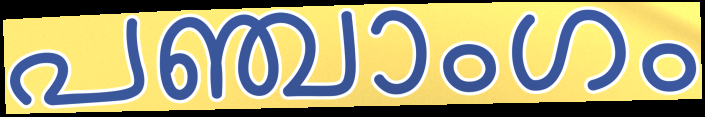
പഞ്ചാംഗം